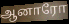
ஆனாரோ